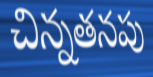
చిన్నతనపు